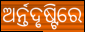
ଅର୍ନ୍ତଦୃଷ୍ଟିରେ